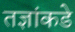
तज्ञांकडे